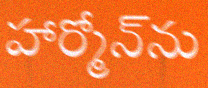
హార్మోన్‌ను